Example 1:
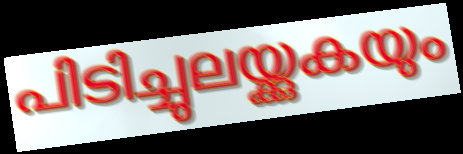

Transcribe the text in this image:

പിടിച്ചുലയ്ക്കുകയും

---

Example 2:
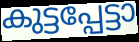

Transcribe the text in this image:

കുട്ടപ്പേട്ടാ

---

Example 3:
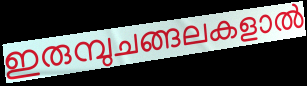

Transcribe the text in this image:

ഇരുമ്പുചങ്ങലകളാൽ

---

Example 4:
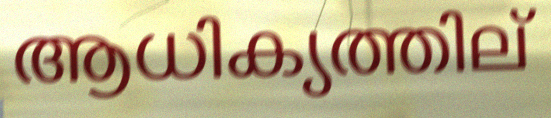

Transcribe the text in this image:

ആധിക്യത്തില്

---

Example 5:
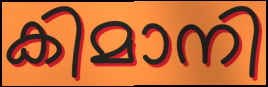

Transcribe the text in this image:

കിമാനി